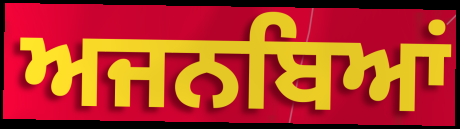
ਅਜਨਬਿਆਂ